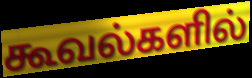
கூவல்களில்